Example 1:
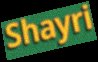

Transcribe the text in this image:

Shayri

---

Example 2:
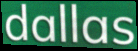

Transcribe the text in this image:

dallas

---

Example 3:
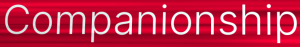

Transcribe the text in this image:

Companionship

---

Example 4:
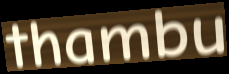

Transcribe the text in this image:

thambu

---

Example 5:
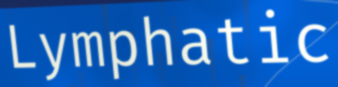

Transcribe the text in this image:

Lymphatic